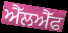
ਐੱਲਐੱਫ